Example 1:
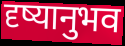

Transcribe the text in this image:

दृष्यानुभव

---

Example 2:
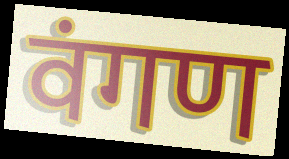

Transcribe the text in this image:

वंगण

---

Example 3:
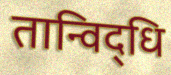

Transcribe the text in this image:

तान्विद्धि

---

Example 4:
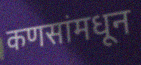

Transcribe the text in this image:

कणसांमधून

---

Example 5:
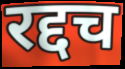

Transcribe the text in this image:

रद्दच